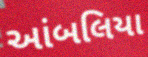
આંબલિયા